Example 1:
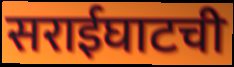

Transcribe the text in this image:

सराईघाटची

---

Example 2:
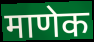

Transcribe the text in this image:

माणेक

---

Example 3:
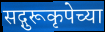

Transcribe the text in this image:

सद्गुरूकृपेच्या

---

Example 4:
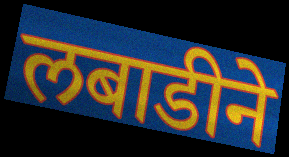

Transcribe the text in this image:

लबाडीने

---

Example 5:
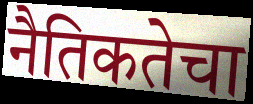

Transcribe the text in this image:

नैतिकतेचा